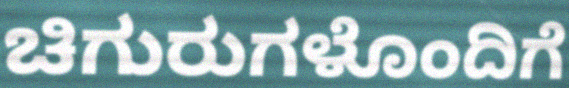
ಚಿಗುರುಗಳೊಂದಿಗೆ